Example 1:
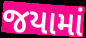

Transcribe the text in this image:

જયામાં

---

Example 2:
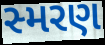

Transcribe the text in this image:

સ્મરણ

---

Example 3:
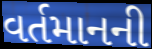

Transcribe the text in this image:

વર્તમાનની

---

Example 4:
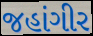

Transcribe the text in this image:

જહાંગીર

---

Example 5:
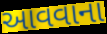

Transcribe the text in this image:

આવવાના